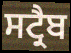
ਸਟ੍ਰੈਬ